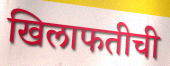
खिलाफतीची